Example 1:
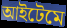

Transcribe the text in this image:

আইটেমে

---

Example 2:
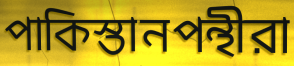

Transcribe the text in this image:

পাকিস্তানপন্থীরা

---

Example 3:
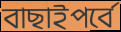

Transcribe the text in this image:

বাছাইপর্বে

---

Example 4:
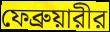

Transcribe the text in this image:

ফেব্রুয়ারীর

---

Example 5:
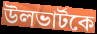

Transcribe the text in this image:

উলভার্টকে